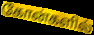
கோன்களில்